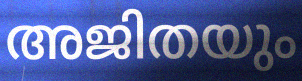
അജിതയും